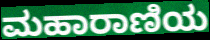
ಮಹಾರಾಣಿಯ